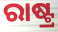
ରାଷ୍ଟ୍ର